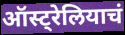
ऑस्ट्रेलियाचं